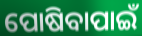
ପୋଷିବାପାଇଁ